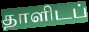
தாளிடப்